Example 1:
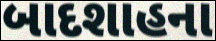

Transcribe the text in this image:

બાદશાહના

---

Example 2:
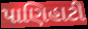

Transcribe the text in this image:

પાણિહાટી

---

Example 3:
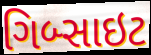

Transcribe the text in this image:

ગિબ્સાઇટ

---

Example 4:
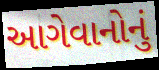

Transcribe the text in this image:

આગેવાનોનું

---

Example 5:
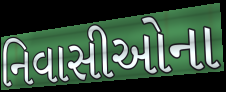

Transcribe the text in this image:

નિવાસીઓના